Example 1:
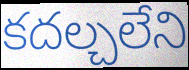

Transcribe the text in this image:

కదల్చలేని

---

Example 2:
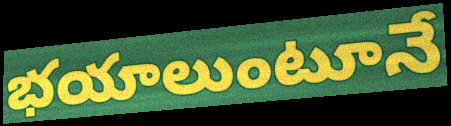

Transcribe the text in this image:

భయాలుంటూనే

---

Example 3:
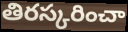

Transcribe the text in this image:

తిరస్కరించా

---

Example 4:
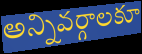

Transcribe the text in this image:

అన్నివర్గాలకూ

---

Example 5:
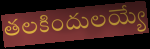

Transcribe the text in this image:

తలకిందులయ్యే